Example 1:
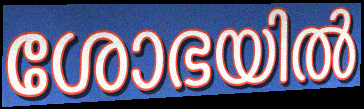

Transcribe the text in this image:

ശോഭയിൽ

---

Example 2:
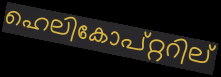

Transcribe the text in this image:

ഹെലികോപ്റ്ററില്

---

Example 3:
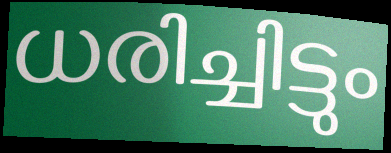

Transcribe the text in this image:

ധരിച്ചിട്ടും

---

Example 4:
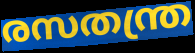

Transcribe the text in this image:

രസതന്ത്ര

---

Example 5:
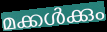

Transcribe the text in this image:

മക്കൾക്കും